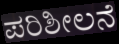
ಪರಿಶೀಲನೆ